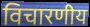
विचारणीय